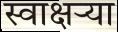
स्वाक्षऱ्या